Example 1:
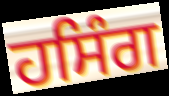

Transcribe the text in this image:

ਹਸਿੰਗ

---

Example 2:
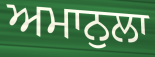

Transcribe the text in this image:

ਅਮਾਨੁਲਾ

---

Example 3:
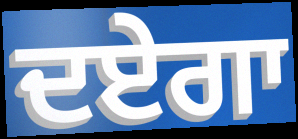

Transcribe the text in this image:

ਦਏਗਾ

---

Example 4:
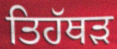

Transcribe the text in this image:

ਤਿਹੱਥੜ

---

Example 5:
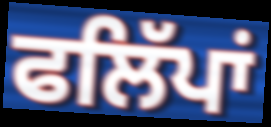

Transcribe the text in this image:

ਫਲਿੱਪਾਂ